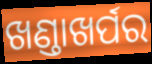
ଖଣ୍ଡାଖର୍ପର